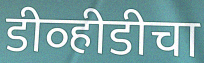
डीव्हीडीचा